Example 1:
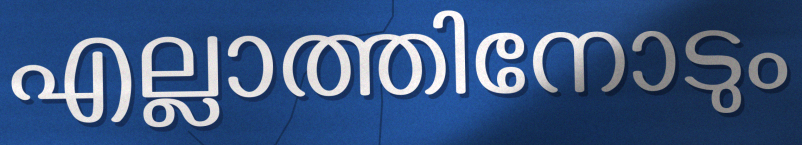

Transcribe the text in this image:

എല്ലാത്തിനോടും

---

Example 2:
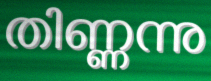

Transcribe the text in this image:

തിണ്ണന്നു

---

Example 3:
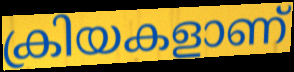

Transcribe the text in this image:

ക്രിയകളാണ്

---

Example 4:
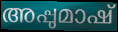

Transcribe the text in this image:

അപ്പുമാഷ്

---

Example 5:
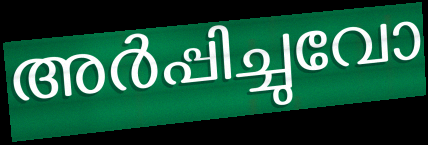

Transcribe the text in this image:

അർപ്പിച്ചുവോ